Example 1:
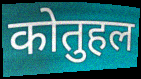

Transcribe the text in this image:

कोतुहल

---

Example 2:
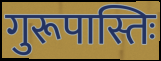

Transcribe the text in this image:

गुरूपास्तिः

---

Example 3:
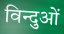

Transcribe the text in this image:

विन्दुओं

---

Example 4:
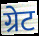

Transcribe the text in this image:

ग्रेट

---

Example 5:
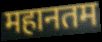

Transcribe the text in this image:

महानतम